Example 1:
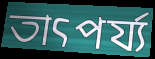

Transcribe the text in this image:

তাৎপৰ্য্য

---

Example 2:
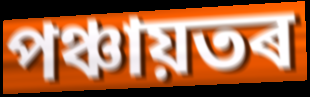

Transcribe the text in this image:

পঞ্চায়তৰ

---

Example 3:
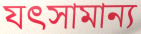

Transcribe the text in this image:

যৎসামান্য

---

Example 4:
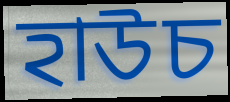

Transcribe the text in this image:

হাউচ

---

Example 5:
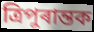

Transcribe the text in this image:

ত্ৰিপুৰান্তক